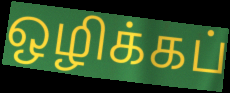
ஒழிக்கப்